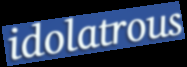
idolatrous